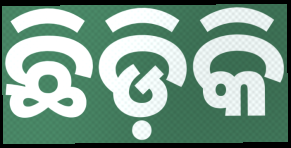
ଛିଡ଼ିକି